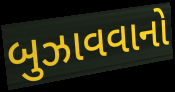
બુઝાવવાનો